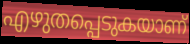
എഴുതപ്പെടുകയാണ്